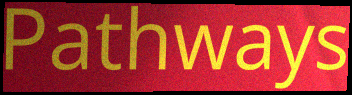
Pathways